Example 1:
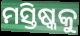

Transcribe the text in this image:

ମସ୍ତିଷ୍କକୁ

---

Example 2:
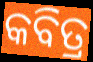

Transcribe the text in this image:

କବିତ୍ର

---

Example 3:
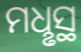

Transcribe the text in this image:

ମଧୢସ୍ଥ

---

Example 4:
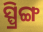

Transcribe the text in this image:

ସ୍ପ୍ରିଙ୍ଗ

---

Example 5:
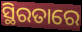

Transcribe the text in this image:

ସ୍ଥିରତାରେ